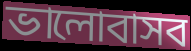
ভালোবাসব